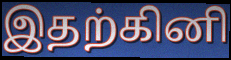
இதற்கினி